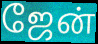
ஜேன்